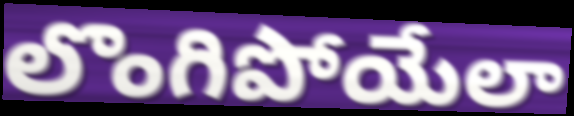
లొంగిపోయేలా